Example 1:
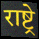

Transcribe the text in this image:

राष्ट्रे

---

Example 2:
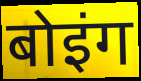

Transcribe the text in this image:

बोइंग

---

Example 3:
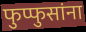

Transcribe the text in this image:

फुप्फुसांना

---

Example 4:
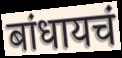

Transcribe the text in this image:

बांधायचं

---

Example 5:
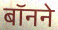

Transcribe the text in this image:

बॉनने